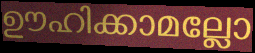
ഊഹിക്കാമല്ലോ